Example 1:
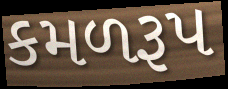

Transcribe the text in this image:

કમળરૂપ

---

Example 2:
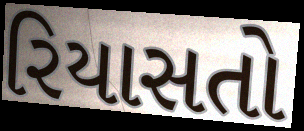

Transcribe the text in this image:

રિયાસતો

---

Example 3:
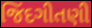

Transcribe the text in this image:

જિંદગીતણી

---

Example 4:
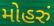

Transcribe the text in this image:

મોહરું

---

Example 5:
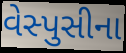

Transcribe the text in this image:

વેસ્પુસીના